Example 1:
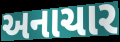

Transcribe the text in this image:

અનાચાર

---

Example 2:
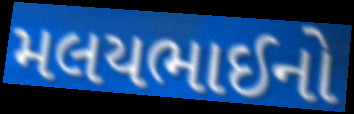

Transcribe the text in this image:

મલયભાઈનો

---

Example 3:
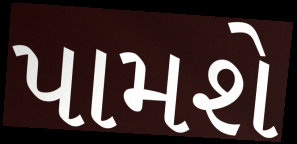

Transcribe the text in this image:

પામશે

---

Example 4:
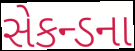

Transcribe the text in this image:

સેકન્ડના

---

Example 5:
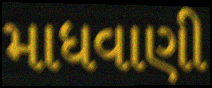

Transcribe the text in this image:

માધવાણી